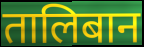
तालिबान